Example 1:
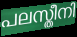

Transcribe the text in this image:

പലസ്തീനി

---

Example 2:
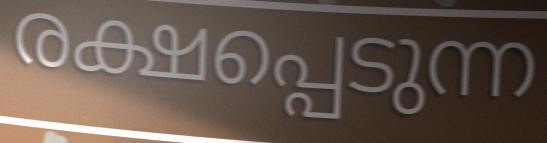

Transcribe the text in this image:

രക്ഷപ്പെടുന്ന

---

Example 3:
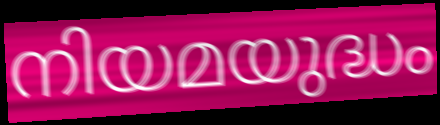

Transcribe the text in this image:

നിയമയുദ്ധം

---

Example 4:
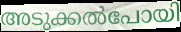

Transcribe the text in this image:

അടുക്കൽപോയി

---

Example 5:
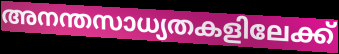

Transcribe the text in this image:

അനന്തസാധ്യതകളിലേക്ക്